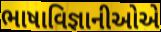
ભાષાવિજ્ઞાનીઓએ